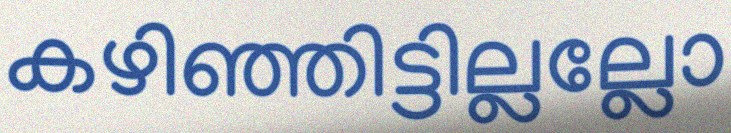
കഴിഞ്ഞിട്ടില്ലല്ലോ